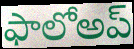
ఫాలోఅప్